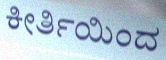
ಕೀರ್ತಿಯಿಂದ